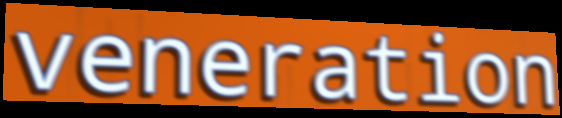
veneration